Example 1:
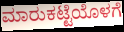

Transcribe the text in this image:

ಮಾರುಕಟ್ಟೆಯೊಳಗೆ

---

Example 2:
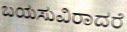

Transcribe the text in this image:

ಬಯಸುವಿರಾದರೆ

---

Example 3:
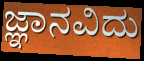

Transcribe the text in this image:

ಜ್ಞಾನವಿದು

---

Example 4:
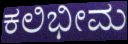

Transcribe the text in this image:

ಕಲಿಭೀಮ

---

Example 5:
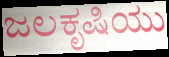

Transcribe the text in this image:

ಜಲಕೃಷಿಯು